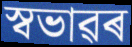
স্বভাৱৰ